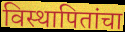
विस्थापितांचा